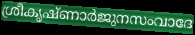
ശ്രീകൃഷ്ണാർജുനസംവാദേ